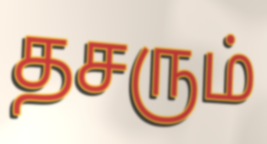
தசரும்